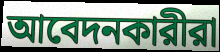
আবেদনকারীরা